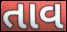
તાવ